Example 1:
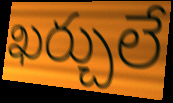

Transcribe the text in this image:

ఖర్చులే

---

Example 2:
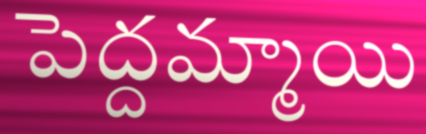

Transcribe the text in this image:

పెద్దమ్మాయి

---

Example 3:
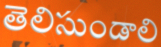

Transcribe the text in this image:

తెలిసుండాలి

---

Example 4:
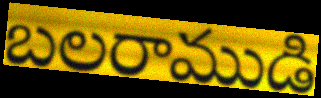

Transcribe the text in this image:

బలరాముడి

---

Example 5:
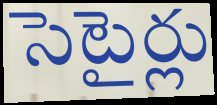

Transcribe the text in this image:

సెటైర్లు